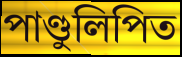
পাণ্ডুলিপিত